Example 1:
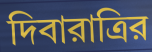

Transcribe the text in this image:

দিবারাত্রির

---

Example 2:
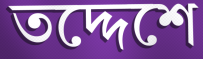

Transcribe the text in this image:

তদ্দেশে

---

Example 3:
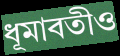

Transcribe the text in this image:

ধূমাবতীও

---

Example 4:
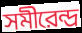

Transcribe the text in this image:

সমীরেন্দ্র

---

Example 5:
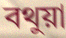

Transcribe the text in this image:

বথুয়া